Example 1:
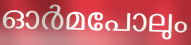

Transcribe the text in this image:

ഓർമപോലും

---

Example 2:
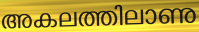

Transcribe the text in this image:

അകലത്തിലാണു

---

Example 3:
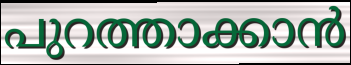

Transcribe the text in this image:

പുറത്താക്കാൻ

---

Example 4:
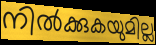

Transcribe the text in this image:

നിൽക്കുകയുമില്ല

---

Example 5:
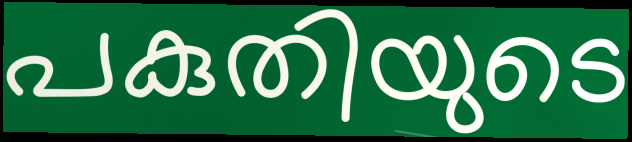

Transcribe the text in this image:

പകുതിയുടെ